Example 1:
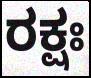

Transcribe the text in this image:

ರಕ್ಷಃ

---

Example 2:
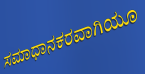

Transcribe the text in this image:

ಸಮಾಧಾನಕರವಾಗಿಯೂ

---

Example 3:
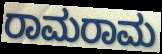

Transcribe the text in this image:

ರಾಮರಾಮ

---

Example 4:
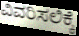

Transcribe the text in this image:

ವಿವರಿಸಲಿಕ್ಕೆ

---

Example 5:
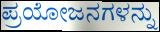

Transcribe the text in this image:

ಪ್ರಯೋಜನಗಳನ್ನು